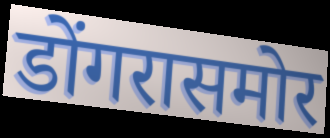
डोंगरासमोर